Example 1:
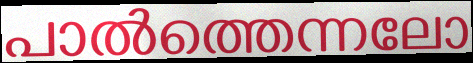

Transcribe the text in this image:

പാൽത്തെന്നലോ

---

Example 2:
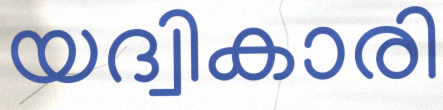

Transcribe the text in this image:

യദ്വികാരി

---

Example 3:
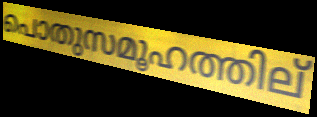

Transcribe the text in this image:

പൊതുസമൂഹത്തില്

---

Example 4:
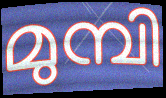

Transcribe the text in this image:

മുമ്പി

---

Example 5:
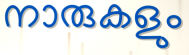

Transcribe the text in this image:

നാരുകളും